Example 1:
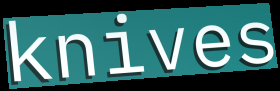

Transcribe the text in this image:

knives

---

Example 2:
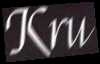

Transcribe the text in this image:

Kru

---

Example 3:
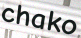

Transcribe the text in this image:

chako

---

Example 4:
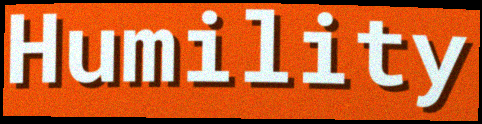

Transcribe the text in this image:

Humility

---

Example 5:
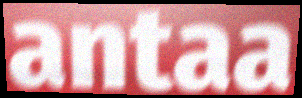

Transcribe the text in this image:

antaa